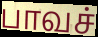
பாவச்